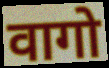
वागो